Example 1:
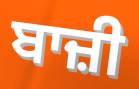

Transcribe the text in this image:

ਬਾਜ਼ੀ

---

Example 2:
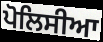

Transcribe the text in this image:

ਪੋਲਿਸੀਆ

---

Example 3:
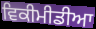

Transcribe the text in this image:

ਵਿਕੀਮੀਡੀਆ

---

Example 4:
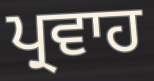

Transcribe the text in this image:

ਪ੍ਰਵਾਹ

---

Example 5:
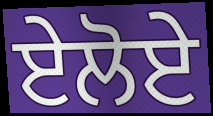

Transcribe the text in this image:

ਏਲੋਏ